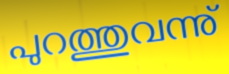
പുറത്തുവന്നു്